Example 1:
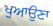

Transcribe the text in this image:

ਖੁਆਉਣਾ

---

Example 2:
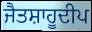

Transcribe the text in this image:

ਜੈਤਸ਼ਾਹੂਦੀਪ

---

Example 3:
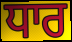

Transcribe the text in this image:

ਧਾਰ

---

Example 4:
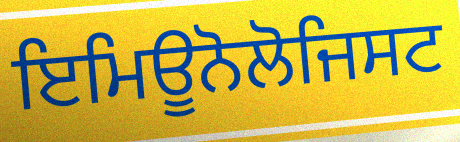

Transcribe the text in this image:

ਇਮਿਊਨੋਲੋਜਿਸਟ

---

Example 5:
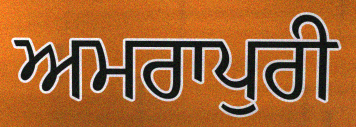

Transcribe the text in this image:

ਅਮਰਾਪੁਰੀ